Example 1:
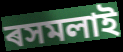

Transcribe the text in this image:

ৰসমলাই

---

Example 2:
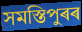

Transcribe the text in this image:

সমস্তিপুৰৰ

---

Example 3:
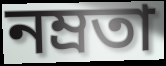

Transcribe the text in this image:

নম্ৰতা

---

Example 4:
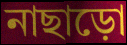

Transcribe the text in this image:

নাছাড়ো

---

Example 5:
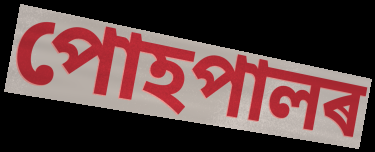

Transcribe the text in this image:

পোহপালৰ